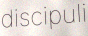
discipuli